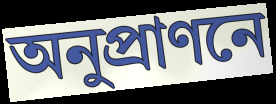
অনুপ্রাণনে